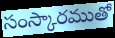
సంస్కారముతో